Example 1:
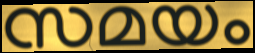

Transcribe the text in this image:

സമയം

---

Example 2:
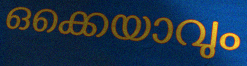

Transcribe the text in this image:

ഒക്കെയാവും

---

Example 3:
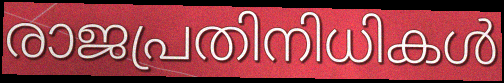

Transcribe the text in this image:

രാജപ്രതിനിധികൾ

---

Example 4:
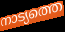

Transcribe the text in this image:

നാട്യത്തെ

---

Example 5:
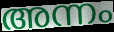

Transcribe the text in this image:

അന്നം